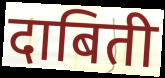
दाबिती